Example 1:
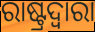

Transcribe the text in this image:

ରାଷ୍ଟ୍ରଦ୍ଵାରା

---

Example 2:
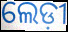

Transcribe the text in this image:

ଲେଡ଼ୀ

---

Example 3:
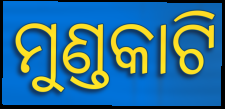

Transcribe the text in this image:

ମୁଣ୍ଡକାଟି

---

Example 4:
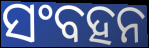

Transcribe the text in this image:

ସଂବହନ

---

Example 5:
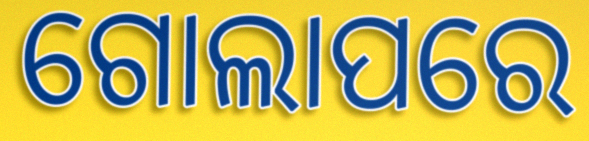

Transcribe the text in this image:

ଗୋଲାପରେ